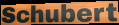
Schubert